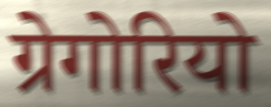
ग्रेगोरियो